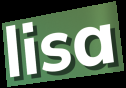
lisa